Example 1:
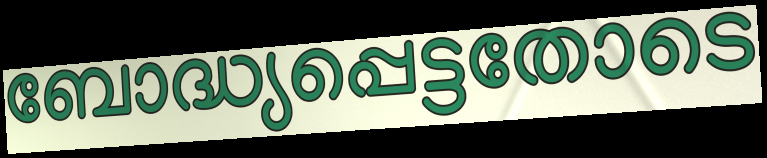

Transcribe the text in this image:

ബോദ്ധ്യപ്പെട്ടതോടെ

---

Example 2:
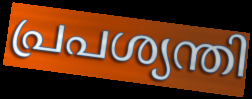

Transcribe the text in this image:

പ്രപശ്യന്തി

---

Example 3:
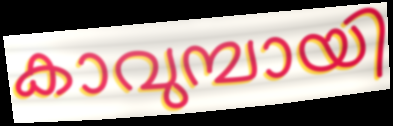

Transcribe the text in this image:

കാവുമ്പായി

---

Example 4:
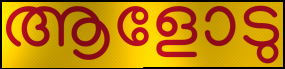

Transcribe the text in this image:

ആളോടു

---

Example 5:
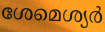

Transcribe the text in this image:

ശേമെശ്യർ